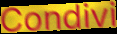
Condivi